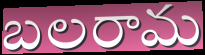
బలరామ